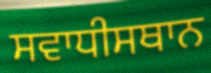
ਸਵਾਧੀਸਥਾਨ